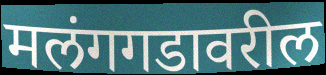
मलंगगडावरील